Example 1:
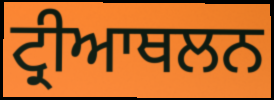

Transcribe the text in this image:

ਟ੍ਰੀਆਥਲਨ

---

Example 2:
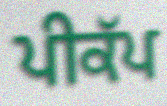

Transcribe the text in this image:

ਪੀਕੱਪ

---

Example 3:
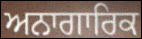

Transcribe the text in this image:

ਅਨਾਗਾਰਿਕ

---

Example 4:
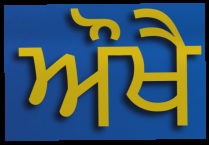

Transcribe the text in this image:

ਔਖੈ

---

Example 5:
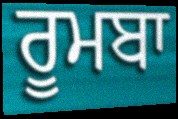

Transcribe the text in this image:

ਰੂਮਬਾ